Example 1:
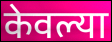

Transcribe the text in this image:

केवल्या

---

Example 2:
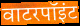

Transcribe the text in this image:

वाटरपॉइंट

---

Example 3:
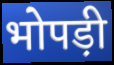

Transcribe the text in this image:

भोपड़ी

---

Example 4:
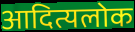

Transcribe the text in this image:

आदित्यलोक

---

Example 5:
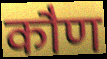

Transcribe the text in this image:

कौण